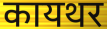
कायथर